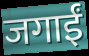
जगाईं